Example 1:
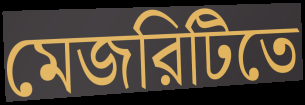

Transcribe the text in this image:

মেজরিটিতে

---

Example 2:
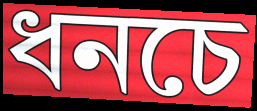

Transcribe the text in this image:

ধনচে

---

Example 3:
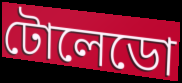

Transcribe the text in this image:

টোলেডো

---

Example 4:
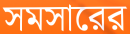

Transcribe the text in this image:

সমসারের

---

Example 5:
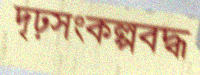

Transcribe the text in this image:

দৃঢ়সংকল্পবদ্ধ